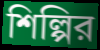
শিল্পির